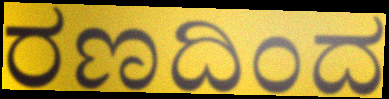
ರಣದಿಂದ